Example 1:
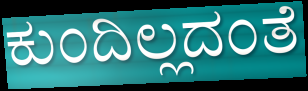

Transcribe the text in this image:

ಕುಂದಿಲ್ಲದಂತೆ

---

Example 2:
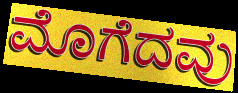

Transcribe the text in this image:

ಮೊಗೆದವು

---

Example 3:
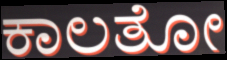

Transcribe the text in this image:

ಕಾಲತೋ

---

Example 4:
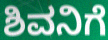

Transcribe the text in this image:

ಶಿವನಿಗೆ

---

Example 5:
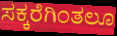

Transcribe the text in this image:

ಸಕ್ಕರೆಗಿಂತಲೂ